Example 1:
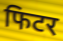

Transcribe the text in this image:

फिटर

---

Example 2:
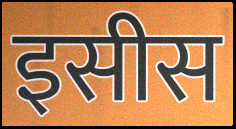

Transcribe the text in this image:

इसीस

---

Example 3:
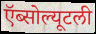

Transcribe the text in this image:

ऍब्सोल्यूटली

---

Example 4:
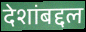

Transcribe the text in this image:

देशांबद्दल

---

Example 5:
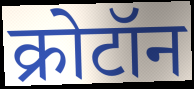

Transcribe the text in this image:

क्रोटॉन